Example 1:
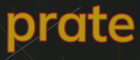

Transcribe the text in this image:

prate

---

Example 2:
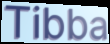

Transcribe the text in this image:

Tibba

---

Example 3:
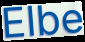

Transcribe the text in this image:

Elbe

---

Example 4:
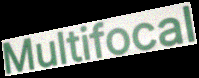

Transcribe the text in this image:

Multifocal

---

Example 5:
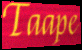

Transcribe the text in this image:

Taape